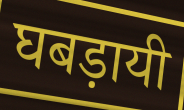
घबड़ायी